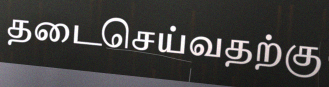
தடைசெய்வதற்கு